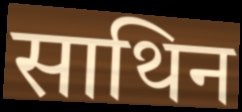
साथिन